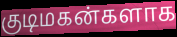
குடிமகன்களாக